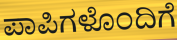
ಪಾಪಿಗಳೊಂದಿಗೆ